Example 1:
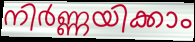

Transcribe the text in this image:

നിർണ്ണയിക്കാം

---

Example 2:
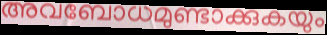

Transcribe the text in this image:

അവബോധമുണ്ടാക്കുകയും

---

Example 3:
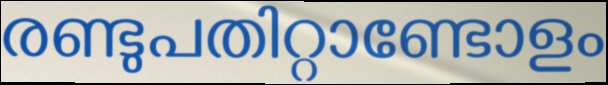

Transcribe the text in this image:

രണ്ടുപതിറ്റാണ്ടോളം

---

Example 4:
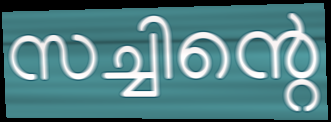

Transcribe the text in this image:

സച്ചിന്റെ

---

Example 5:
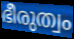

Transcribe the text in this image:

ഭീരുത്വം